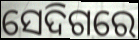
ସେଦିଗରେ